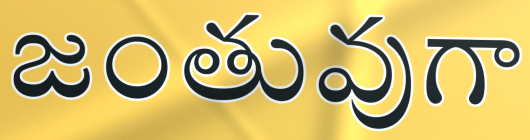
జంతువుగా